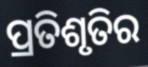
ପ୍ରତିଶୃତିର